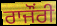
ਰਾਜੌਂਰੀ